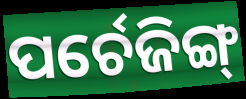
ପର୍ଚେଜିଙ୍ଗ୍